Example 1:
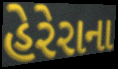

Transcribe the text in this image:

હેરેરાના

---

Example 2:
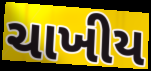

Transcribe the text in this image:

ચાખીય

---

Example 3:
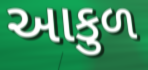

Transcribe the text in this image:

આકુળ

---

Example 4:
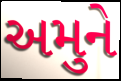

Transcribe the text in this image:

અમુને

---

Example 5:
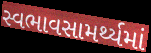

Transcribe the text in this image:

સ્વભાવસામર્થ્યમાં